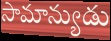
సామాన్యుడు